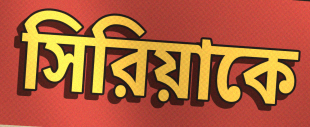
সিরিয়াকে